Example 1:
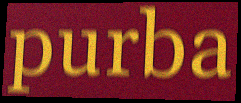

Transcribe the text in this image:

purba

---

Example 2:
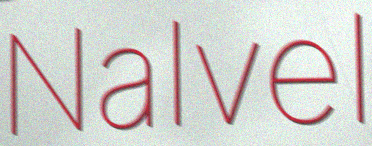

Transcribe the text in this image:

Nalvel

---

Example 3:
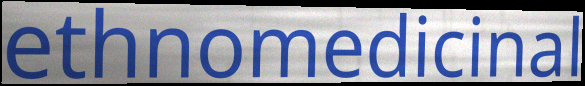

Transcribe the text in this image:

ethnomedicinal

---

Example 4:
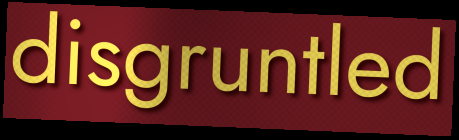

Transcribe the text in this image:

disgruntled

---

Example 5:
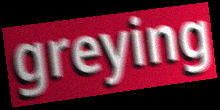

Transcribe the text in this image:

greying